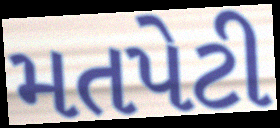
મતપેટી